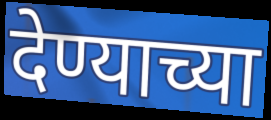
देण्याच्या